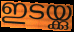
ഇടയ്ക്കു